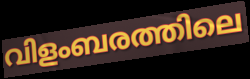
വിളംബരത്തിലെ